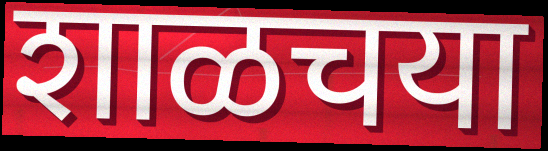
शाळचया